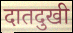
दातदुखी